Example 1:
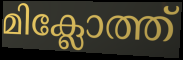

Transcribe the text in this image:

മിക്ലോത്ത്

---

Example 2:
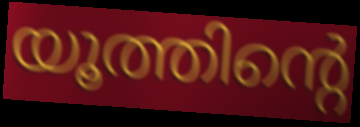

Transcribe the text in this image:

യൂത്തിന്റെ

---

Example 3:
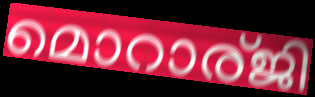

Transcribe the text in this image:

മൊറാര്ജി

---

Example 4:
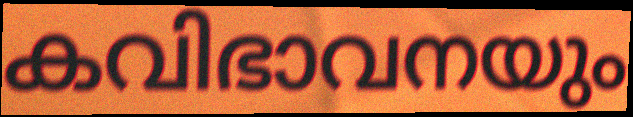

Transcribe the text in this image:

കവിഭാവനയും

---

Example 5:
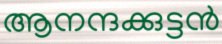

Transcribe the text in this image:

ആനന്ദക്കുട്ടൻ